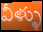
వీళ్ళు